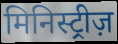
मिनिस्ट्रीज़